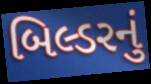
બિલ્ડરનું